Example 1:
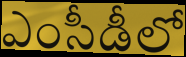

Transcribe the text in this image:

ఎంసీడీలో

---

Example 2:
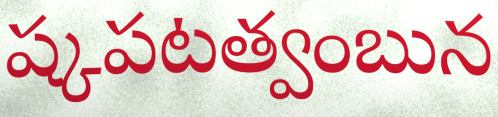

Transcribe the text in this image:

ష్కపటత్వంబున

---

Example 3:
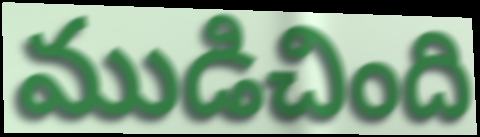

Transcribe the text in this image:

ముడిచింది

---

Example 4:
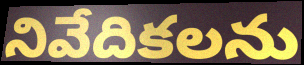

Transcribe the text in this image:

నివేదికలను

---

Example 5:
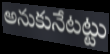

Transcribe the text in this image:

అనుకునేటట్టు